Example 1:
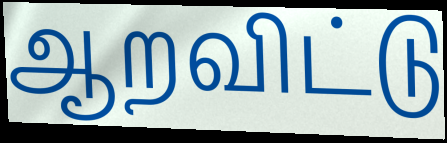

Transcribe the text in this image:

ஆறவிட்டு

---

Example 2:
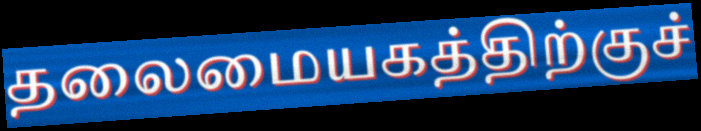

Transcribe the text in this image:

தலைமையகத்திற்குச்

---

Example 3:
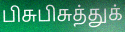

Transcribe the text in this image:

பிசுபிசுத்துக்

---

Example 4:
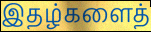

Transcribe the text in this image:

இதழ்களைத்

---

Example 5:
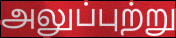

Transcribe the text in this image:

அலுப்புற்று